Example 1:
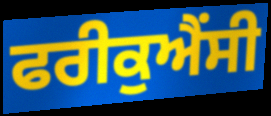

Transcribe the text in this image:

ਫਰੀਕੁਐਂਸੀ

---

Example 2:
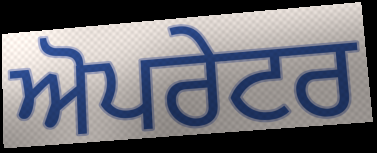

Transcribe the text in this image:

ਅੋਪਰੇਟਰ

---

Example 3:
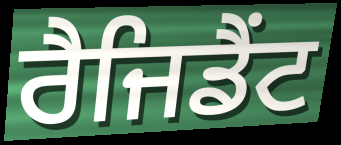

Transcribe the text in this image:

ਰੈਜਿਡੈਂਟ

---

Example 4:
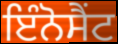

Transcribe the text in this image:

ਇੰਨੋਸੈਂਟ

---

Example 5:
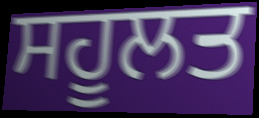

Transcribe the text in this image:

ਸਹੂਲਤ